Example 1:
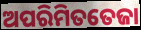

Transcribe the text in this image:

ଅପରିମିତତେଜା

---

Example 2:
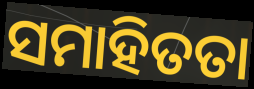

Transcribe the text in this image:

ସମାହିତତା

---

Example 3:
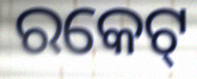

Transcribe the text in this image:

ରକେଟ୍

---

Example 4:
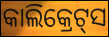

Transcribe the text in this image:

କାଲିକ୍ରେଟ୍‍ସ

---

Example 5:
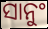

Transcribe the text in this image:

ସାନୁଂ